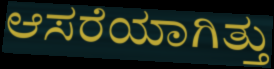
ಆಸರೆಯಾಗಿತ್ತು